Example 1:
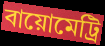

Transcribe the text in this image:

বায়োমেট্রি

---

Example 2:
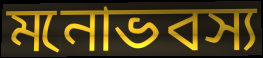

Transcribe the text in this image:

মনোভবস্য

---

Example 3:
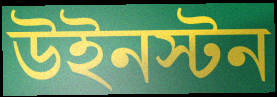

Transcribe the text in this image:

উইনস্টন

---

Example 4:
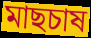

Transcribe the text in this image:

মাছচাষ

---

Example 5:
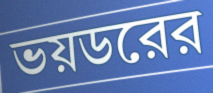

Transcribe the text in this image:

ভয়ডরের